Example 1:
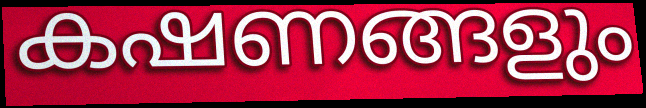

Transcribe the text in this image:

കഷണങ്ങളും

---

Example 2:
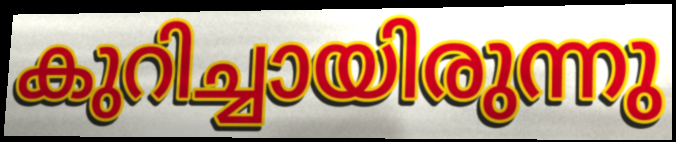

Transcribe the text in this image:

കുറിച്ചായിരുന്നു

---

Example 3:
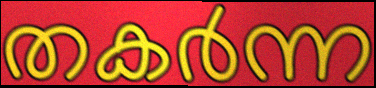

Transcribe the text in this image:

തകർന്ന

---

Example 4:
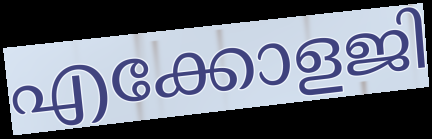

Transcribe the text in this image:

എക്കോളജി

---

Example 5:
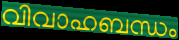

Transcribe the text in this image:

വിവാഹബന്ധം